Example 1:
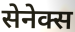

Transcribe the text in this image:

सेनेक्स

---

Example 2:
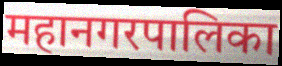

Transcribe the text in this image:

महानगरपालिका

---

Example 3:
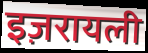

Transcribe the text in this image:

इज़रायली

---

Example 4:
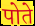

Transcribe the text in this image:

पोते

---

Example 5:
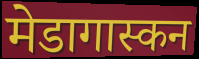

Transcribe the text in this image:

मेडागास्कन